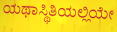
ಯಥಾಸ್ಥಿತಿಯಲ್ಲಿಯೇ